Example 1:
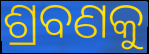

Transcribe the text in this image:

ଶ୍ରବଣକୁ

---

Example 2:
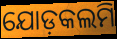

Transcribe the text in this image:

ଯୋଡ଼କଲମି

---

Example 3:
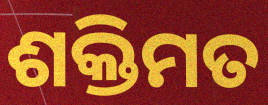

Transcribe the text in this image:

ଶକ୍ତିମତ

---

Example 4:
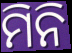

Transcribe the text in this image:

ମିନି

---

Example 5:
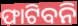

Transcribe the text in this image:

ଫାଟିବନି